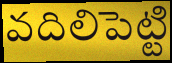
వదిలిపెట్టి